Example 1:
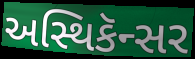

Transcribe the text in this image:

અસ્થિકૅન્સર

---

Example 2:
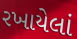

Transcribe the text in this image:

રખાયેલાં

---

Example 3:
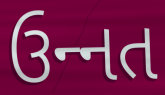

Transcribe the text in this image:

ઉન્‍નત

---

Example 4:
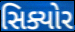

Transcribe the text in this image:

સિક્યોર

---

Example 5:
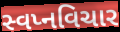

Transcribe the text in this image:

સ્વપ્નવિચાર